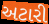
અટારી